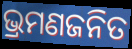
ଭ୍ରମଣଜନିତ